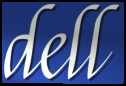
dell